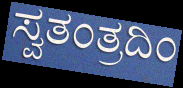
ಸ್ವತಂತ್ರದಿಂ